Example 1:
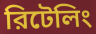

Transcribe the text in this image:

রিটেলিং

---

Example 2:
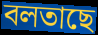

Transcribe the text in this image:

বলতাছে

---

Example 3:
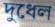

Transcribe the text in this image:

দুধেল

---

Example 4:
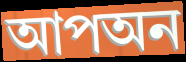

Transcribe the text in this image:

আপঅন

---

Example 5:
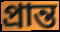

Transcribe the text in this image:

প্রান্ত